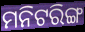
ମନିଟରିଙ୍ଗ